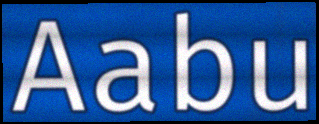
Aabu